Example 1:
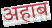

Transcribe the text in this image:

अहाब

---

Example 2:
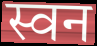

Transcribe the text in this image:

स्वन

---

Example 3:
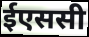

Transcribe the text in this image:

ईएससी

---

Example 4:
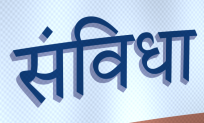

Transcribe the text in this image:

संविधा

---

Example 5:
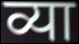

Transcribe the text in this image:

व्या